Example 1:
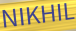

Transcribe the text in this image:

NIKHIL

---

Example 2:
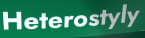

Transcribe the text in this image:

Heterostyly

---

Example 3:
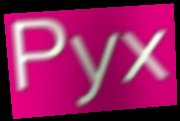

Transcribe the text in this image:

Pyx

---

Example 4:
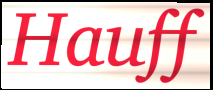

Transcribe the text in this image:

Hauff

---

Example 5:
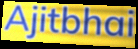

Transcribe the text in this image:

Ajitbhai